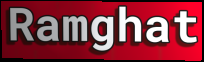
Ramghat